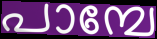
പാമ്പേ